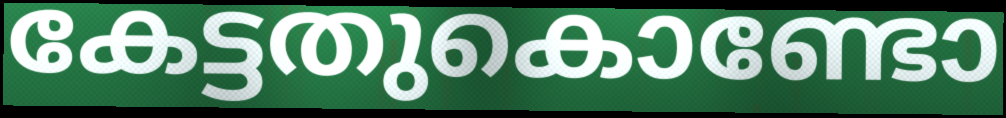
കേട്ടതുകൊണ്ടോ